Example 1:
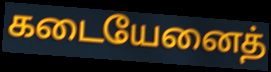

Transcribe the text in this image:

கடையேனைத்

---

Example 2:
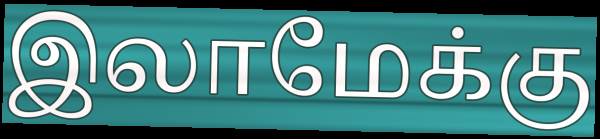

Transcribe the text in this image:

இலாமேக்கு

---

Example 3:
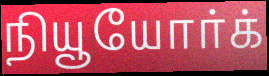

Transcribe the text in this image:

நியூயோர்க்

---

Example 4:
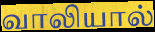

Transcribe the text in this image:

வாலியால்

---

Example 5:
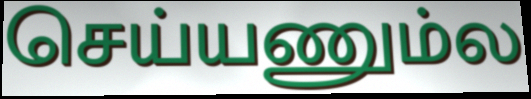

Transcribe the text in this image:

செய்யணும்ல